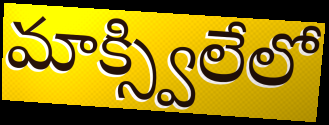
మాక్స్విలేలో